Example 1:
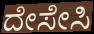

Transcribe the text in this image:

ದೇಸೇಸಿ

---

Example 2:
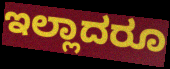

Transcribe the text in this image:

ಇಲ್ಲಾದರೂ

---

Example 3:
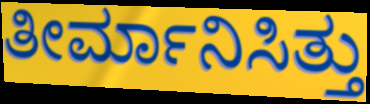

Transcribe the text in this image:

ತೀರ್ಮಾನಿಸಿತ್ತು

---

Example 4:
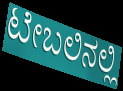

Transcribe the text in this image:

ಟೇಬಲಿನಲ್ಲಿ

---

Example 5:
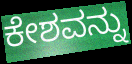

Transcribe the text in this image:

ಕೇಶವನ್ನು